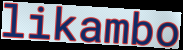
likambo